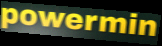
powermin